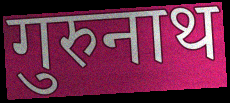
गुरुनाथ